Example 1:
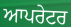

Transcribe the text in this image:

ਆਪਰੇਟਰ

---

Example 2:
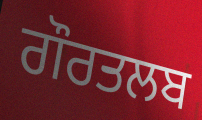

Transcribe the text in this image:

ਗੌਰਤਲਬ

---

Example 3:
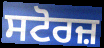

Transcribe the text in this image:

ਸਟੋਰਜ਼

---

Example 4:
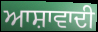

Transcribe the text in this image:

ਆਸ਼ਾਵਾਦੀ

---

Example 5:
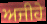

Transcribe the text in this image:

ਅਜੀਹੇ